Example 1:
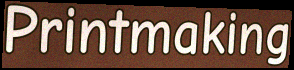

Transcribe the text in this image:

Printmaking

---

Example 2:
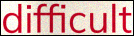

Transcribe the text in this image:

difficult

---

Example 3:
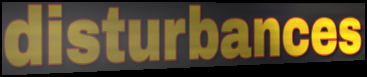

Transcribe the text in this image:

disturbances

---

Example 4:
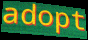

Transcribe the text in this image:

adopt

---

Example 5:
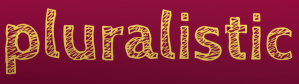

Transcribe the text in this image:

pluralistic